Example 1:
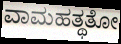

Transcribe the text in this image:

ವಾಮಹತ್ಥತೋ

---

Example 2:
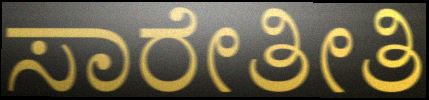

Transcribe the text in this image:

ಸಾರೇತೀತಿ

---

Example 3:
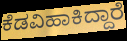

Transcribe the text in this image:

ಕೆಡವಿಹಾಕಿದ್ದಾರೆ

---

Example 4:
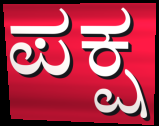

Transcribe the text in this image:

ಪಕ್ಷ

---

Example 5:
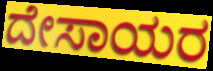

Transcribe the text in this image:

ದೇಸಾಯರ